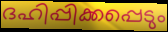
ദഹിപ്പിക്കപ്പെടും